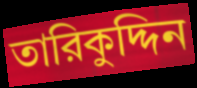
তারিকুদ্দিন